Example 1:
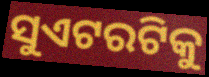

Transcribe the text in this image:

ସୁଏଟରଟିକୁ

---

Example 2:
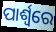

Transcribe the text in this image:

ପାର୍ଶ୍ଵରେ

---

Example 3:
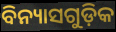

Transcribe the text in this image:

ବିନ୍ୟାସଗୁଡ଼ିକ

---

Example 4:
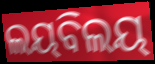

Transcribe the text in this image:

ଲୟବିଲୟ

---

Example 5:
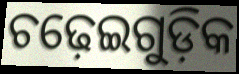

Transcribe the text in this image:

ଚଢ଼େଇଗୁଡ଼ିକ